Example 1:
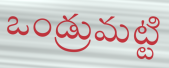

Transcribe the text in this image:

ఒండ్రుమట్టి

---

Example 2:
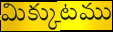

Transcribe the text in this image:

మిక్కుటము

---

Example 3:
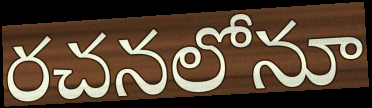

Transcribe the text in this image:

రచనలోనూ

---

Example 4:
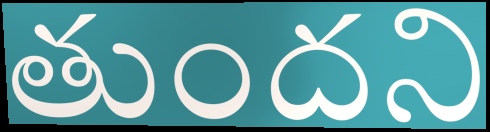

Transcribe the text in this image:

తుందని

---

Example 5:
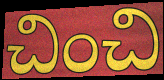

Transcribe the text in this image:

చించి